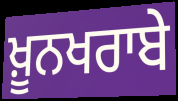
ਖ਼ੂਨਖਰਾਬੇ